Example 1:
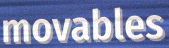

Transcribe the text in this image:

movables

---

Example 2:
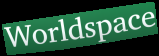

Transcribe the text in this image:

Worldspace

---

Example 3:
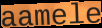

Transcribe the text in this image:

aamele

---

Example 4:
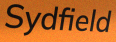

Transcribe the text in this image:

Sydfield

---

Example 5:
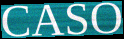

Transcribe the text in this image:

CASO